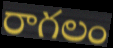
రాగలం